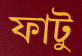
ফাটু